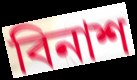
বিনাশ